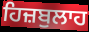
ਹਿਜ਼ਬੁਲਾਹ